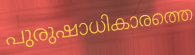
പുരുഷാധികാരത്തെ